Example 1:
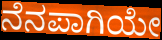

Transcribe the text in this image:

ನೆನಪಾಗಿಯೇ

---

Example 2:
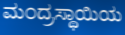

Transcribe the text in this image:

ಮಂದ್ರಸ್ಥಾಯಿಯ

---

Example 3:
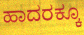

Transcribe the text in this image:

ಹಾದರಕ್ಕೂ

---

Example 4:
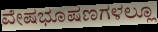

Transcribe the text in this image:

ವೇಷಭೂಷಣಗಳಲ್ಲೂ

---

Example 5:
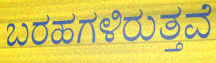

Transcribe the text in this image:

ಬರಹಗಳಿರುತ್ತವೆ